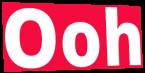
Ooh